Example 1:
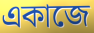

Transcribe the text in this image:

একাজে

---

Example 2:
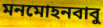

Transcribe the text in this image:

মনমোহনবাবু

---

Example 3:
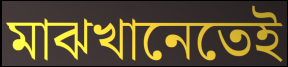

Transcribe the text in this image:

মাঝখানেতেই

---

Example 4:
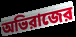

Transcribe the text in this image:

অভিরাজের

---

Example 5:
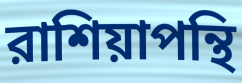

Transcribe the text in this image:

রাশিয়াপন্থি